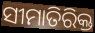
ସୀମାତିରିକ୍ତ